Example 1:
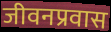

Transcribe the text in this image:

जीवनप्रवास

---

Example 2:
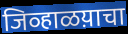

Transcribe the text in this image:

जिव्हाळय़ाचा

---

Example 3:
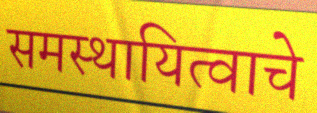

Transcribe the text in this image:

समस्थायित्वाचे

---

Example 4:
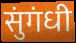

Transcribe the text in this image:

सुंगंधी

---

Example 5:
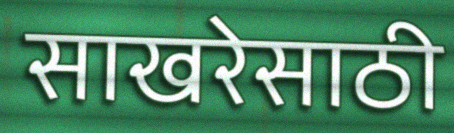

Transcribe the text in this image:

साखरेसाठी